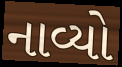
નાવ્યો